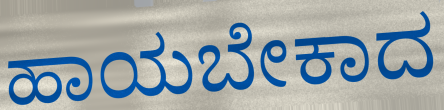
ಹಾಯಬೇಕಾದ